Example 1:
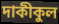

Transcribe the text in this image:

দাকীকুল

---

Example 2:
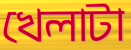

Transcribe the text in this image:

খেলাটা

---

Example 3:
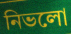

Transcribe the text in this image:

নিভলো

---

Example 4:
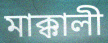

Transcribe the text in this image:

মাক্কালী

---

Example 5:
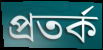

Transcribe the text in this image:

প্রতর্ক